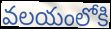
వలయంలోకి